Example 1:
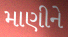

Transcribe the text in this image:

માણીને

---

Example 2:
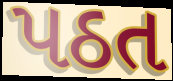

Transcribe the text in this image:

પઠત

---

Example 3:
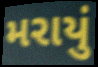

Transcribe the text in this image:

મરાયું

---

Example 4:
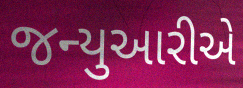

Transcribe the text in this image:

જન્યુઆરીએ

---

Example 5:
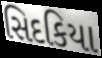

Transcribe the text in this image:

સિદકિયા